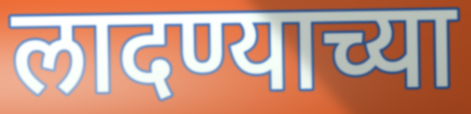
लादण्याच्या